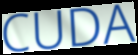
CUDA